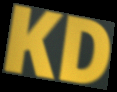
KD